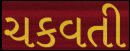
ચકવતી